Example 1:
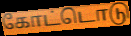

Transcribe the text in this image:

கோட்டொடு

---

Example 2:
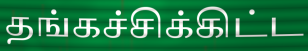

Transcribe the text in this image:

தங்கச்சிக்கிட்ட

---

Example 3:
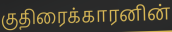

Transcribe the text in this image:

குதிரைக்காரனின்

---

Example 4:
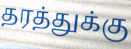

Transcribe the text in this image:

தரத்துக்கு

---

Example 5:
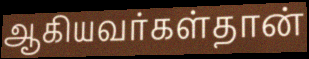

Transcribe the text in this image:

ஆகியவர்கள்தான்